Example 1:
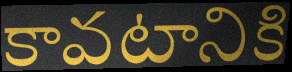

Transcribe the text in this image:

కావటానికి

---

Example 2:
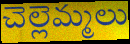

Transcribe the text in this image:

చెల్లెమ్మలు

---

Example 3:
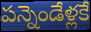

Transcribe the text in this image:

పన్నెండేళ్లకే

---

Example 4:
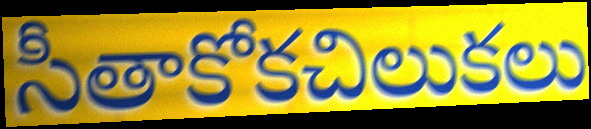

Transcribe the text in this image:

సీతాకోకచిలుకలు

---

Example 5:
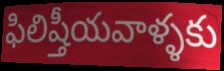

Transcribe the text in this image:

ఫిలిష్తీయవాళ్ళకు